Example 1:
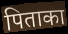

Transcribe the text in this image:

पिताका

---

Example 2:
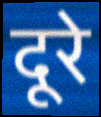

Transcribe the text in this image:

दूरे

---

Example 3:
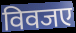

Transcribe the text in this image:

विवजए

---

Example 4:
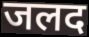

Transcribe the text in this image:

जलद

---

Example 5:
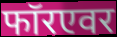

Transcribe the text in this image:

फॉरएवर